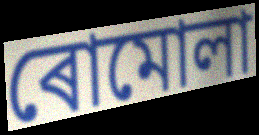
ৰোমোলা